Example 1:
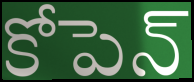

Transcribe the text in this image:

కోపెన్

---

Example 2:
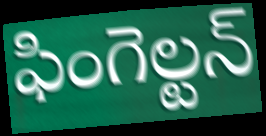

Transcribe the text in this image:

ఫింగెల్టన్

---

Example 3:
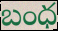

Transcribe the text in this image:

బంధ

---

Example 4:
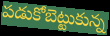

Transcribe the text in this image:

పడుకోబెట్టుకున్న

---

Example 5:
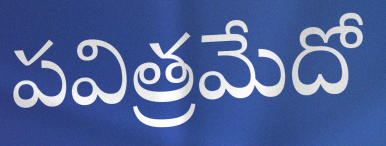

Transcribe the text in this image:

పవిత్రమేదో